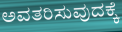
ಅವತರಿಸುವುದಕ್ಕೆ